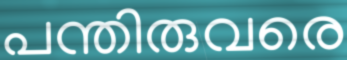
പന്തിരുവരെ